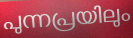
പുന്നപ്രയിലും